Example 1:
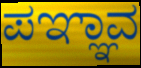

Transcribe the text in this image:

ಪಞ್ಞಾವ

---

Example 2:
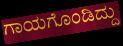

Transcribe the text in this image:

ಗಾಯಗೊಂಡಿದ್ದು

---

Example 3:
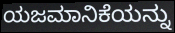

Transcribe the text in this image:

ಯಜಮಾನಿಕೆಯನ್ನು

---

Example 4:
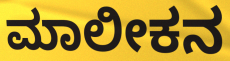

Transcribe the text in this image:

ಮಾಲೀಕನ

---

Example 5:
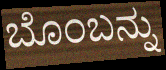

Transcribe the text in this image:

ಬೊಂಬನ್ನು